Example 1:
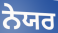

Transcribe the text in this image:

ਨੇਯਰ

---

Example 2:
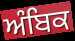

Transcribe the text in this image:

ਅੰਬਿਕ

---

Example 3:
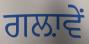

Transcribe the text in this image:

ਗਲ਼ਾਵੇਂ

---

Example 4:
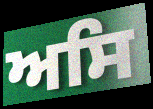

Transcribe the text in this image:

ਅਸਿ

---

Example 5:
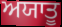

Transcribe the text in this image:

ਅਯਾਤੂ